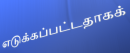
எடுக்கப்பட்டதாகக்